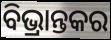
ବିଭ୍ରାନ୍ତକର